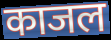
काजल